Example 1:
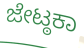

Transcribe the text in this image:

ಜೇಟ್ಠಕಾ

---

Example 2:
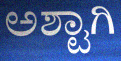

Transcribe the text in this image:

ಅಶ್ಟಾಗಿ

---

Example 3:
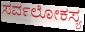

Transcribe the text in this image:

ಸರ್ವಲೋಕಸ್ಯ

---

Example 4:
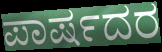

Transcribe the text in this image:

ಪಾರ್ಷದರ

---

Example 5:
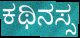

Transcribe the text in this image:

ಕಥಿನಸ್ಸ